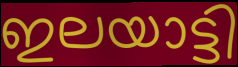
ഇലയാട്ടി